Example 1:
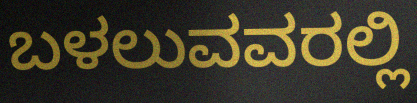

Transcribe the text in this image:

ಬಳಲುವವರಲ್ಲಿ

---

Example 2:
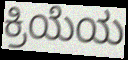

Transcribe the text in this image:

ಕ್ರಿಯೆಯ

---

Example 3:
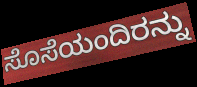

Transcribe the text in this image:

ಸೊಸೆಯಂದಿರನ್ನು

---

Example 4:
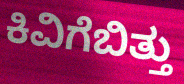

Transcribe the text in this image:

ಕಿವಿಗೆಬಿತ್ತು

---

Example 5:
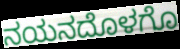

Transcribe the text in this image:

ನಯನದೊಳಗೊ